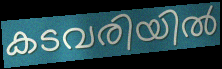
കടവരിയിൽ